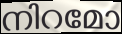
നിറമോ